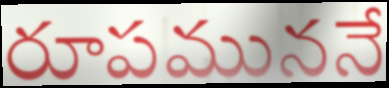
రూపముననే